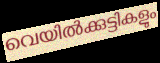
വെയിൽക്കുട്ടികളും